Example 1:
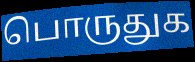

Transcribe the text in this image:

பொருதுக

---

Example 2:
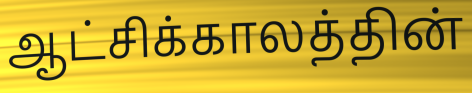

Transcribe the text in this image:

ஆட்சிக்காலத்தின்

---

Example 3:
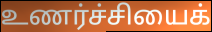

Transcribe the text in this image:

உணர்ச்சியைக்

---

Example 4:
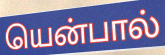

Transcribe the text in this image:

யென்பால்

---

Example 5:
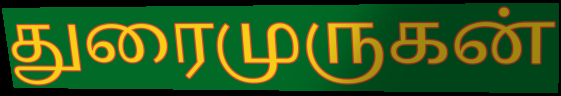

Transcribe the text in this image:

துரைமுருகன்